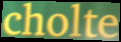
cholte